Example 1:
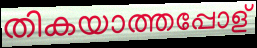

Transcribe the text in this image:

തികയാത്തപ്പോള്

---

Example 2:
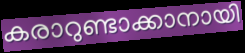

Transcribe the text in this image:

കരാറുണ്ടാക്കാനായി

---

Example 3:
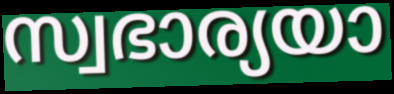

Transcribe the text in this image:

സ്വഭാര്യയാ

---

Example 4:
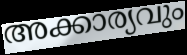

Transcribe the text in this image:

അക്കാര്യവും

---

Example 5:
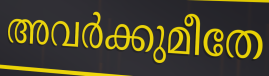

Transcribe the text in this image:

അവർക്കുമീതേ